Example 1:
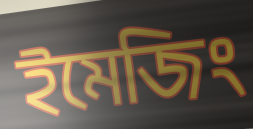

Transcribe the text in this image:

ইমেজিং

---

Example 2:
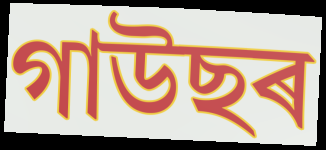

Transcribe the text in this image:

গাউছৰ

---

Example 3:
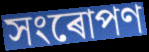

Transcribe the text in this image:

সংৰোপণ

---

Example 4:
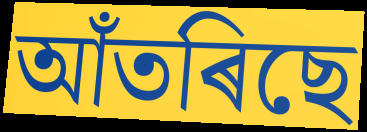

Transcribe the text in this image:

আঁতৰিছে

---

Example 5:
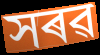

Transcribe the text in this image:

সৰৱ